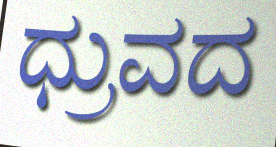
ಧ್ರುವದ